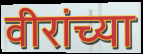
वीरांच्या